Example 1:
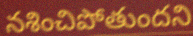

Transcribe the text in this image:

నశించిపోతుందని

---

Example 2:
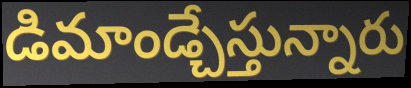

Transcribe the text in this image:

డిమాండ్చేస్తున్నారు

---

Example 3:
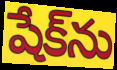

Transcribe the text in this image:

షేక్‌ను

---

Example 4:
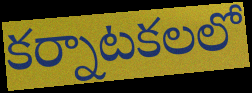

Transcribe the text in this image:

కర్నాటకలలో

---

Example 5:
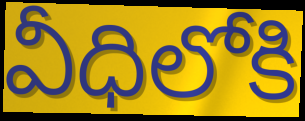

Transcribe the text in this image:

వీధిలోకి